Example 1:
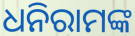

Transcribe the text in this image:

ଧନିରାମଙ୍କ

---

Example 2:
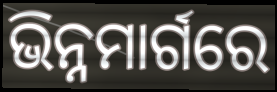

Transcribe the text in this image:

ଭିନ୍ନମାର୍ଗରେ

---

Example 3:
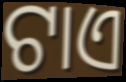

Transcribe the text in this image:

ଟାଏ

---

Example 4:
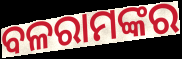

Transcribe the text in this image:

ବଳରାମଙ୍କର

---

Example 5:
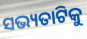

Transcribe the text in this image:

ସଭ୍ୟତାଟିକୁ